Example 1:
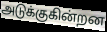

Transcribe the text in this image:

அடுக்குகின்றன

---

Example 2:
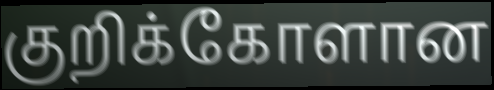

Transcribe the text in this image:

குறிக்கோளான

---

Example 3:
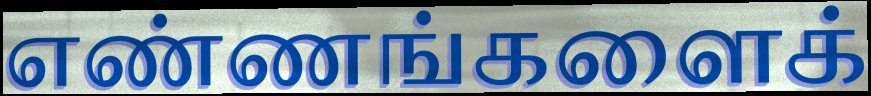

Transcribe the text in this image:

எண்ணங்களைக்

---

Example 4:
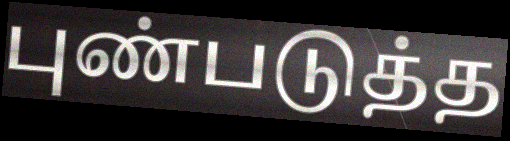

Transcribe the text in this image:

புண்படுத்த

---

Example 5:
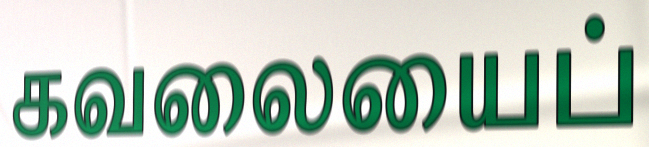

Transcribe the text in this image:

கவலையைப்